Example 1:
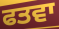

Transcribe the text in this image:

ਫਤਵਾ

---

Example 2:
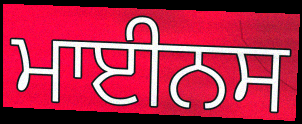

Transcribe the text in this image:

ਮਾਈਨਸ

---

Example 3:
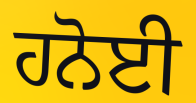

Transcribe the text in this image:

ਹਨੋਈ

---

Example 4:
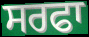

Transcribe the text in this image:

ਸਰਫਾ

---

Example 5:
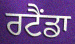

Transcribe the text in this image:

ਰਟੈਂਡਾ